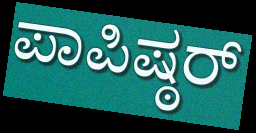
ಪಾಪಿಷ್ಠರ್